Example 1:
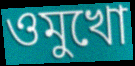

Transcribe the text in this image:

ওমুখো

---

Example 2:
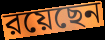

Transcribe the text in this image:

রয়েছেন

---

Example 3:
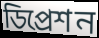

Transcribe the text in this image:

ডিপ্রেশন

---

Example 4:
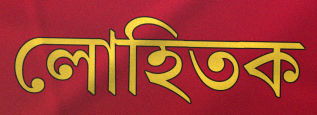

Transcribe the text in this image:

লোহিতক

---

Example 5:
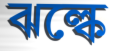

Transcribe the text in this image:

ঝল্কে